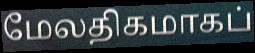
மேலதிகமாகப்